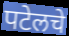
पटेलचे